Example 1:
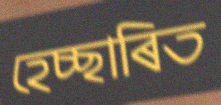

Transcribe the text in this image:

হেচ্ছাৰিত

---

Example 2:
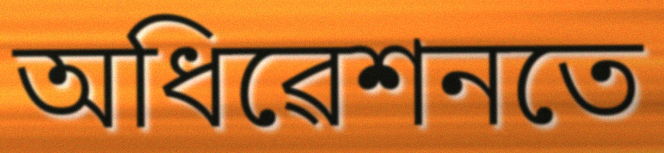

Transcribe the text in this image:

অধিৱেশনতে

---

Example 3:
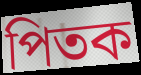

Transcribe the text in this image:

পিতক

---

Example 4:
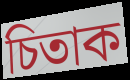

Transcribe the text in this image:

চিতাক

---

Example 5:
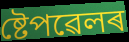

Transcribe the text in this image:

ষ্টেপৱেলৰ